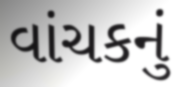
વાંચકનું